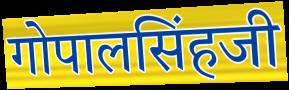
गोपालसिंहजी